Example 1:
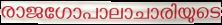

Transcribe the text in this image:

രാജഗോപാലാചാരിയുടെ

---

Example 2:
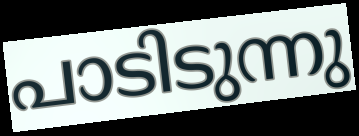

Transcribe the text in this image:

പാടിടുന്നു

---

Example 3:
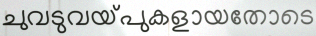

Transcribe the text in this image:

ചുവടുവയ്‌പുകളായതോടെ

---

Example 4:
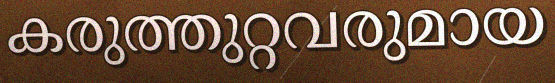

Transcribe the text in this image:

കരുത്തുറ്റവരുമായ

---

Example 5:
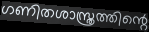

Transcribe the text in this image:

ഗണിതശാസ്ത്രത്തിന്റെ